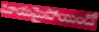
మాయమైపోయిందో